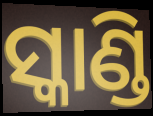
ସ୍କାଣ୍ଡି